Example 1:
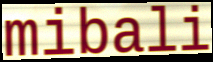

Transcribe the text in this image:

mibali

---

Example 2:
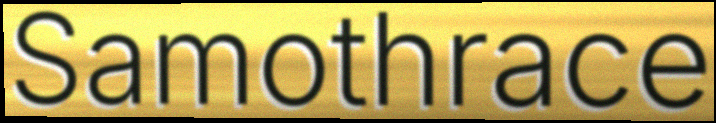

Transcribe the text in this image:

Samothrace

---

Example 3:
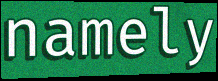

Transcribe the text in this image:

namely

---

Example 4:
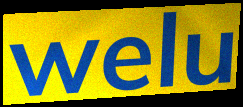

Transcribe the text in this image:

welu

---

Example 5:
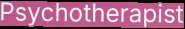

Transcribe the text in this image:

Psychotherapist